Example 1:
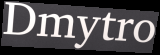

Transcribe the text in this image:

Dmytro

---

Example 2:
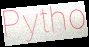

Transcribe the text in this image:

Pytho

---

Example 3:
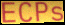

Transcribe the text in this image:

ECPs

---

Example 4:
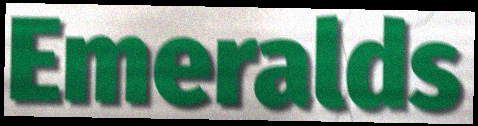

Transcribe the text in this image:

Emeralds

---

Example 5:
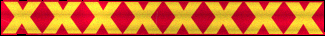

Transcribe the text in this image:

xxxxxxxx